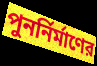
পুনর্নির্মাণের